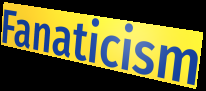
Fanaticism